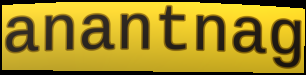
anantnag